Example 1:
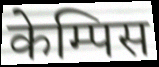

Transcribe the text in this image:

केम्पिस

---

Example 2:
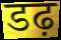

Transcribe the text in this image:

डढ़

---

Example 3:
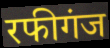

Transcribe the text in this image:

रफीगंज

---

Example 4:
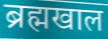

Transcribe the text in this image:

ब्रह्मखाल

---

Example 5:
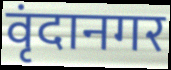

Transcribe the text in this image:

वृंदानगर